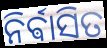
ନିର୍ଵାସିତ